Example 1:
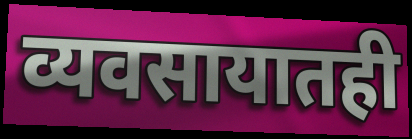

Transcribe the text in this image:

व्यवसायातही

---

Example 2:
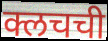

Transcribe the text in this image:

क्लचची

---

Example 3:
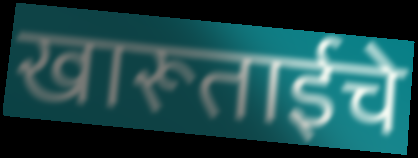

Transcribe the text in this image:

खारूताईचे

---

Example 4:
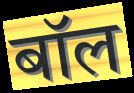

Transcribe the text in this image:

बॉल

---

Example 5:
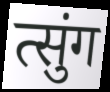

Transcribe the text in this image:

त्सुंग